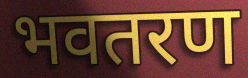
भवतरण